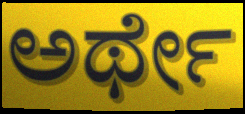
ಅರ್ಥೇ